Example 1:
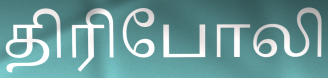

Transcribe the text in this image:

திரிபோலி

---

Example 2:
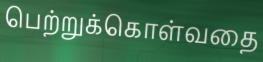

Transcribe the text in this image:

பெற்றுக்கொள்வதை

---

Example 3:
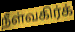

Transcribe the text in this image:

நீள்வகிர்க்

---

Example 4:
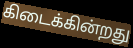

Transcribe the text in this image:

கிடைக்கின்றது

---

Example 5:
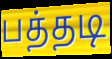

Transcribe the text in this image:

பத்தடி